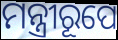
ମନ୍ତ୍ରୀରୂପେ